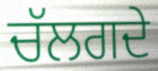
ਚੱਲਗਦੇ